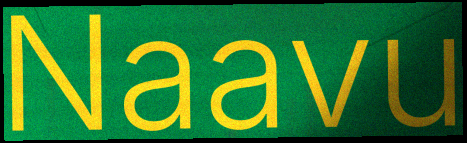
Naavu